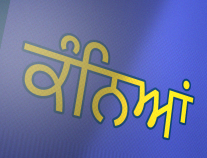
ਕੰਨਿਆਂ